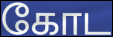
கோட